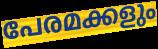
പേരമക്കളും